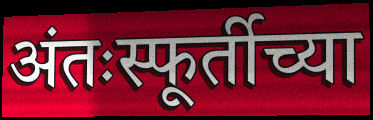
अंतःस्फूर्तीच्या